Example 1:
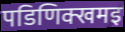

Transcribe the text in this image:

पडिणिक्खमइ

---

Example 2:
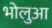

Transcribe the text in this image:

भोलुआ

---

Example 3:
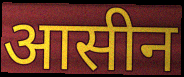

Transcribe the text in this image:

आसीन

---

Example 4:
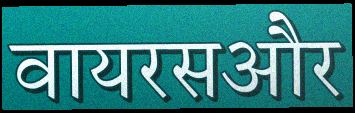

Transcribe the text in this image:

वायरसऔर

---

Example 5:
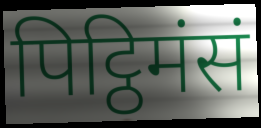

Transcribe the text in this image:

पिट्ठिमंसं